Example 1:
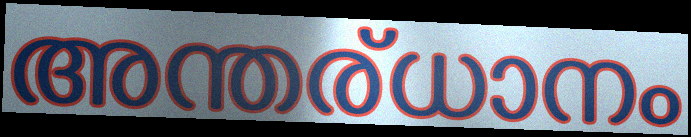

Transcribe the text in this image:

അന്തര്ധാനം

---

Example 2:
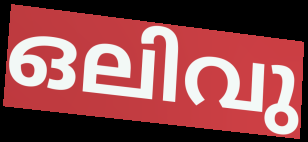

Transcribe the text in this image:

ഒലിവു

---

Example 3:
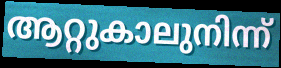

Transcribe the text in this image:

ആറ്റുകാലുനിന്ന്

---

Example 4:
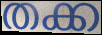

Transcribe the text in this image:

തക്ക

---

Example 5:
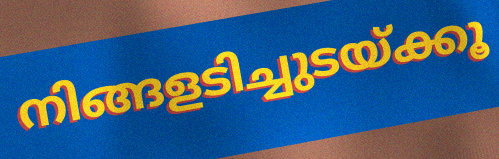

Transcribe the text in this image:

നിങ്ങളടിച്ചുടയ്ക്കൂ